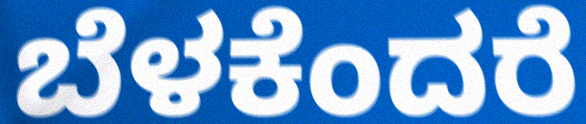
ಬೆಳಕೆಂದರೆ